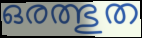
ഒരത്ഭുത